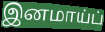
இனமாய்ப்